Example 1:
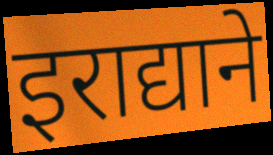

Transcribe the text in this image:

इराद्याने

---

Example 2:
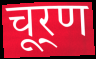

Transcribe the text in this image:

चूर्ण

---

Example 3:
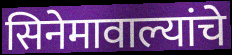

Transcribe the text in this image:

सिनेमावाल्यांचे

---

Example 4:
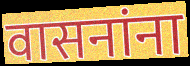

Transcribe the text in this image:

वासनांना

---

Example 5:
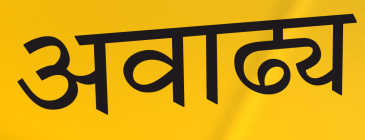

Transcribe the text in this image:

अवाढ्य